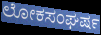
ಲೋಕಸಂಘರ್ಷ